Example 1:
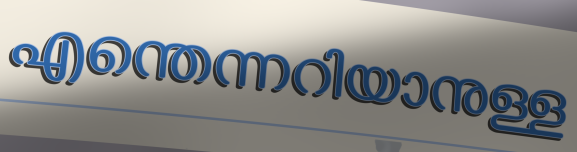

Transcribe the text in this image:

എന്തെന്നറിയാനുള്ള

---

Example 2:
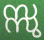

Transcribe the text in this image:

സ്സു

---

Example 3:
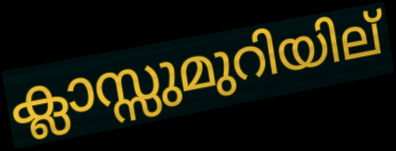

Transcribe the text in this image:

ക്ലാസ്സുമുറിയില്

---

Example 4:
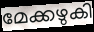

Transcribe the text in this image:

മേക്കഴുകി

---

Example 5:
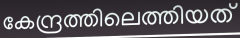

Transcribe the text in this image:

കേന്ദ്രത്തിലെത്തിയത്